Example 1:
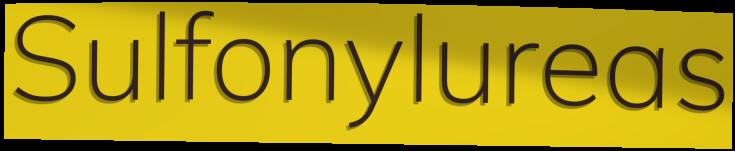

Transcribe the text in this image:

Sulfonylureas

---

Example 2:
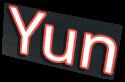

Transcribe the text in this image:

Yun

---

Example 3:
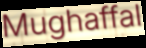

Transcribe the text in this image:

Mughaffal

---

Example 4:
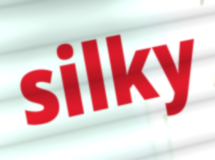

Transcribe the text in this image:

silky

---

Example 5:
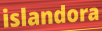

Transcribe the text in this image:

islandora